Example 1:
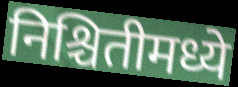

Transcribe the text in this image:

निश्चितीमध्ये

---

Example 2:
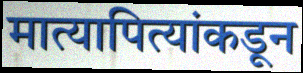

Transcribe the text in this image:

मात्यापित्यांकडून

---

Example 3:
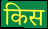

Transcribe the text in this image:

किस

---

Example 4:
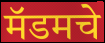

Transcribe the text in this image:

मॅडमचे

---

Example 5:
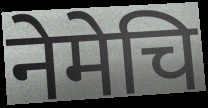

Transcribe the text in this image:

नेमेचि